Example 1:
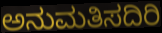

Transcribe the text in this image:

ಅನುಮತಿಸದಿರಿ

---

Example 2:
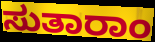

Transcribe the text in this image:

ಸುತಾರಾಂ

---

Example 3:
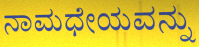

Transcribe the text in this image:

ನಾಮಧೇಯವನ್ನು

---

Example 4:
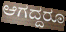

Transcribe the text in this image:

ಆಗದ್ದರೂ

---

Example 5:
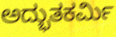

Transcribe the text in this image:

ಅದ್ಭುತಕರ್ಮಿ